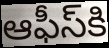
ఆఫీస్‌కి